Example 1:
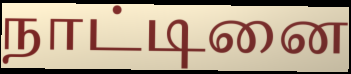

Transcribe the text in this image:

நாட்டினை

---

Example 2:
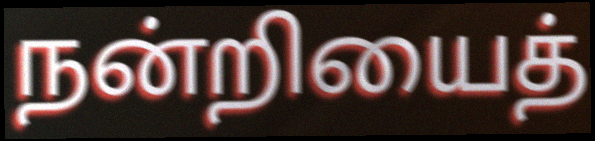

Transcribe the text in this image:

நன்றியைத்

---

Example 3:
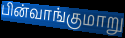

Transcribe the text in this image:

பின்வாங்குமாறு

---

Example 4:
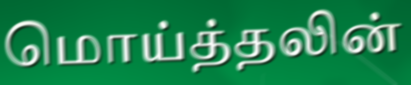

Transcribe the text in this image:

மொய்த்தலின்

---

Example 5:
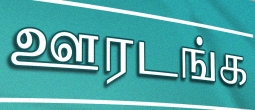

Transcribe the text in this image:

ஊரடங்க